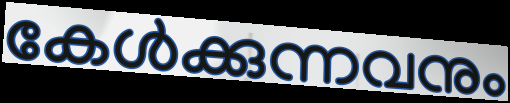
കേൾക്കുന്നവനും